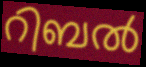
റിബൽ